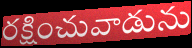
రక్షించువాడును